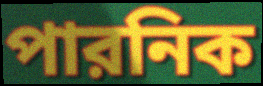
পারনিক